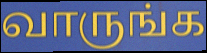
வாருங்க